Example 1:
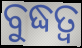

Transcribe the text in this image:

ବୁଦ୍ଧତ୍ଵ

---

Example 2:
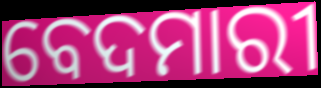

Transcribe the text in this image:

ବେଦମାରୀ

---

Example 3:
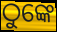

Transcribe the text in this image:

ଠୁଙ୍କେ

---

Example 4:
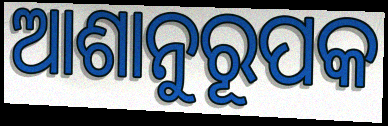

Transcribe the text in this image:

ଆଶାନୁରୂପକ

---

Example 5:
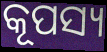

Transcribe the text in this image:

କୂପସ୍ୟ